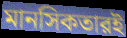
মানসিকতারই